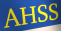
AHSS